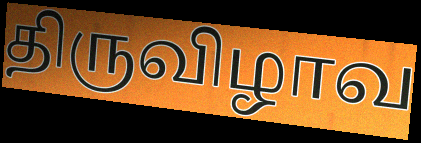
திருவிழாவ